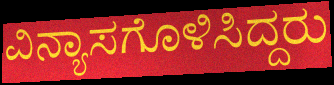
ವಿನ್ಯಾಸಗೊಳಿಸಿದ್ದರು